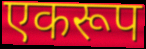
एकरूप